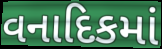
વનાદિકમાં